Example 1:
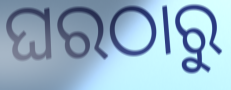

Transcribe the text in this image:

ଘରଠାରୁ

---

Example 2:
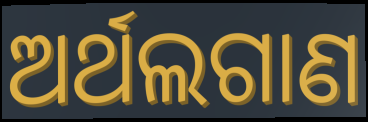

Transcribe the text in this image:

ଅର୍ଥଲଗାଣ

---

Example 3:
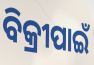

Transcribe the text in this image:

ବିକ୍ରୀପାଇଁ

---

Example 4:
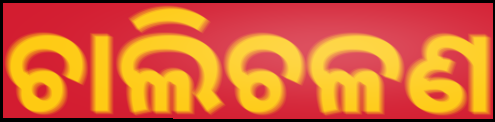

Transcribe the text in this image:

ଚାଲିଚଳଣ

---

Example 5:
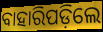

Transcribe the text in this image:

ବାହାରିପଡ଼ିଲେ